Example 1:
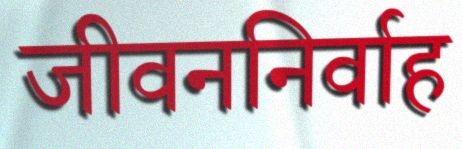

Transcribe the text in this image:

जीवननिर्वाह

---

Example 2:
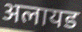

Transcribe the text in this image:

अलायड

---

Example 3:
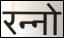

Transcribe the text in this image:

रन्नो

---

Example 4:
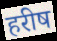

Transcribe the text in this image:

हरीष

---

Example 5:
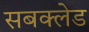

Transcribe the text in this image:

सबक्लेड